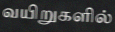
வயிறுகளில்